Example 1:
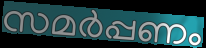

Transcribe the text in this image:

സമർപ്പണം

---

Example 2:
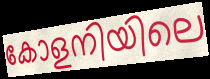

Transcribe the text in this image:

കോളനിയിലെ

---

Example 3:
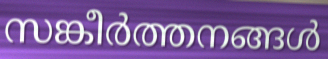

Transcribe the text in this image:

സങ്കീർത്തനങ്ങൾ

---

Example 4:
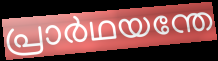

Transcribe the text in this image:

പ്രാർഥയന്തേ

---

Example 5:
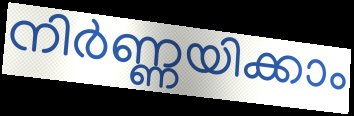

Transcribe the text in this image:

നിർണ്ണയിക്കാം